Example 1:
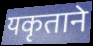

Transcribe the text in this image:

यकृताने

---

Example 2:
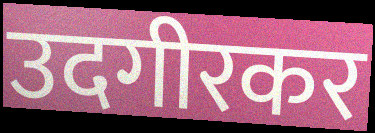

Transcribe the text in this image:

उदगीरकर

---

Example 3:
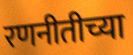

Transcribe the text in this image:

रणनीतीच्या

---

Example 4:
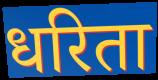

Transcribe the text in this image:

धरिता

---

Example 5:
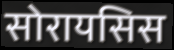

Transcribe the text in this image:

सोरायसिस